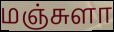
மஞ்சுளா